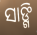
ସାଙ୍ଗି